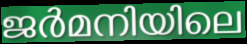
ജർമനിയിലെ